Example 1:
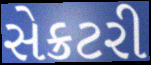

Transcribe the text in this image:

સેક્રટરી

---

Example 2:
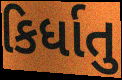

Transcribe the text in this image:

કિર્ધાતુ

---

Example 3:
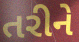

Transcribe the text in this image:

તરીને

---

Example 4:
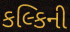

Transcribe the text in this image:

કલ્કિની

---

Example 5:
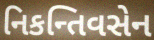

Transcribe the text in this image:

નિકન્તિવસેન